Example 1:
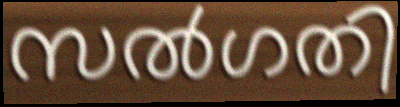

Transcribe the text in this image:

സൽഗതി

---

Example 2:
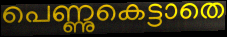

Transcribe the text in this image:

പെണ്ണുകെട്ടാതെ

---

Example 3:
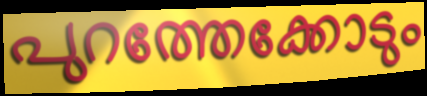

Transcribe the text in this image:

പുറത്തേക്കോടും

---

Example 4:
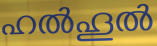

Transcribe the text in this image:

ഹൽഹൂൽ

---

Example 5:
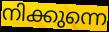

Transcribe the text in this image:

നിക്കുന്നെ